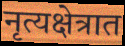
नृत्यक्षेत्रात